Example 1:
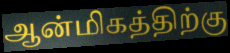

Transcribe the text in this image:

ஆன்மிகத்திற்கு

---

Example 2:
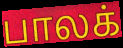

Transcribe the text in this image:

பாலக்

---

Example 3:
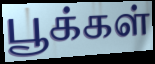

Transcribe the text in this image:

பூக்கள்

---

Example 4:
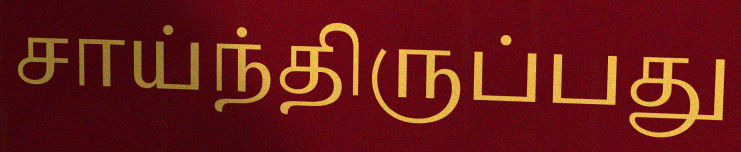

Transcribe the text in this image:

சாய்ந்திருப்பது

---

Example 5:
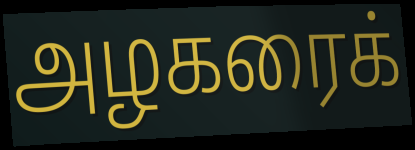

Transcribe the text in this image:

அழகரைக்